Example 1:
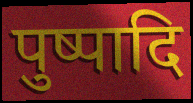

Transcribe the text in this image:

पुष्पादि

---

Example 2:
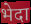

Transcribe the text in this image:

भेदा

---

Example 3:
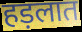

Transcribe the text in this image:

हड़लात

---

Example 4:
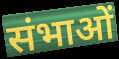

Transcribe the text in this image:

संभाओं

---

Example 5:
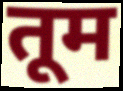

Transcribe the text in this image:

तूम